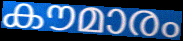
കൗമാരം